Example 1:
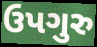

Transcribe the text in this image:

ઉપગુરુ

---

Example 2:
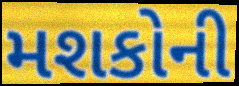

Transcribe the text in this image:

મશકોની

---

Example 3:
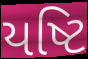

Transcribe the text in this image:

યષ્ટિ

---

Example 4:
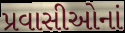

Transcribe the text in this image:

પ્રવાસીઓનાં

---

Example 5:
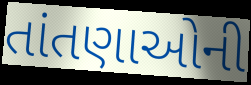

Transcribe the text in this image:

તાંતણાઓની